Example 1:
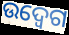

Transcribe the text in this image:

ଉଦ୍ବେଗ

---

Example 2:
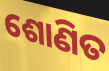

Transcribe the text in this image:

ଶୋଣିତ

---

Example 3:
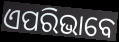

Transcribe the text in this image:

ଏପରିଭାବେ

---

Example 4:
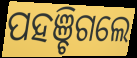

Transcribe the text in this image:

ପହଞ୍ଚିଗଲେ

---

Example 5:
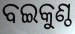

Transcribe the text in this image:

ବଇକୁଣ୍ଠ